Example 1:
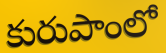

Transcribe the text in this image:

కురుపాంలో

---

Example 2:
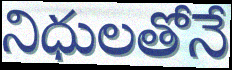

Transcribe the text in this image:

నిధులతోనే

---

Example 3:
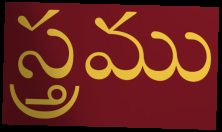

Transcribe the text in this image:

స్త్రము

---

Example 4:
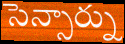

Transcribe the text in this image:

సెన్సార్ను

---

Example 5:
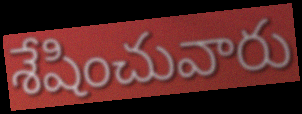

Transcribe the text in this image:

శేషించువారు